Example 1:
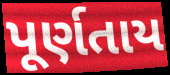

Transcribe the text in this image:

પૂર્ણતાય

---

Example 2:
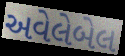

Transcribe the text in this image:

અવેલેબેલ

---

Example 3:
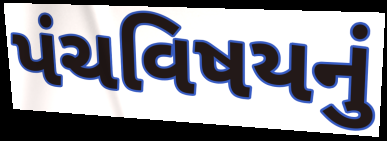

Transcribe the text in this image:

પંચવિષયનું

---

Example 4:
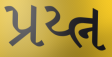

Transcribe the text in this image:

પ્રય્ત્ન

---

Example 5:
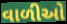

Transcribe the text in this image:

વાળીઓ